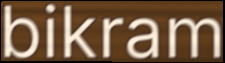
bikram